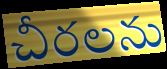
చీరలను